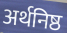
अर्थनिष्ठ